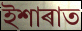
ইশাৰাত